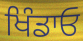
ਖਿੰਡਾਓ